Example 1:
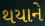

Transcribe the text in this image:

થયાને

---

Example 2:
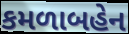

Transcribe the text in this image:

કમળાબહેન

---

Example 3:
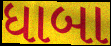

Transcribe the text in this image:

ધાબા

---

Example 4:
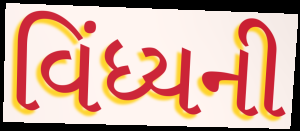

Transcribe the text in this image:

વિંધ્યની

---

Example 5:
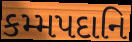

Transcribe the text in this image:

કમ્મપદાનિ